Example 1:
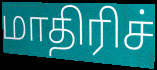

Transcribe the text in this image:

மாதிரிச்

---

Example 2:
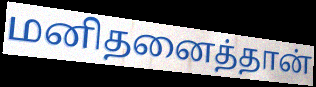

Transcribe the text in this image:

மனிதனைத்தான்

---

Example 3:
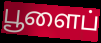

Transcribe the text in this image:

பூளைப்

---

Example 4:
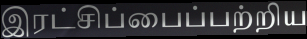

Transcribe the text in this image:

இரட்சிப்பைப்பற்றிய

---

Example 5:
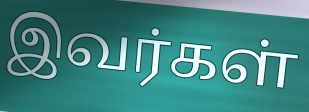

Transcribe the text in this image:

இவர்கள்